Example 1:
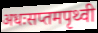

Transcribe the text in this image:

अधःसप्तमपृथ्वी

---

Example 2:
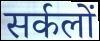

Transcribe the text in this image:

सर्कलों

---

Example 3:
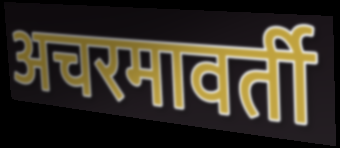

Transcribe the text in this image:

अचरमावर्ती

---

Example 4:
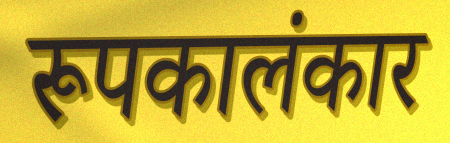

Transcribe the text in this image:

रूपकालंकार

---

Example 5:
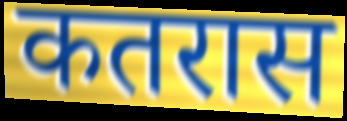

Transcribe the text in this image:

कतरास